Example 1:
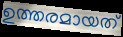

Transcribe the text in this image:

ഉത്തരമായത്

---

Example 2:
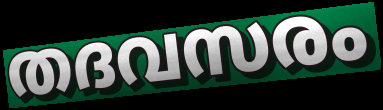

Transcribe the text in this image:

തദവസരം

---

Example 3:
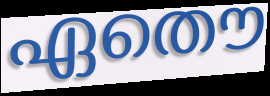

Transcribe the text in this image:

ഏതൌ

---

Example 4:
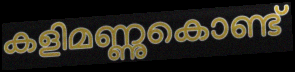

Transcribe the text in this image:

കളിമണ്ണുകൊണ്ട്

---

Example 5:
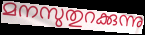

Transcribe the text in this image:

മനസുതുറക്കുന്നു